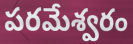
పరమేశ్వరం